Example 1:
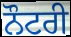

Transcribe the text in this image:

ਨੌਟਰੀ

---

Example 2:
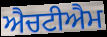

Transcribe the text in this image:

ਐਚਟੀਐਮ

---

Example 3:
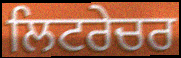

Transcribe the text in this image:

ਲਿਟਰੇਚਰ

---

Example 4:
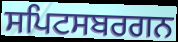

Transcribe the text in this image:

ਸਪਿਟਸਬਰਗਨ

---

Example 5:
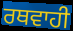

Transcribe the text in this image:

ਰਥਵਾਹੀ